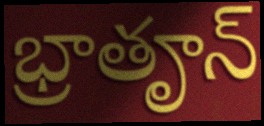
భ్రాతౄన్